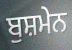
ਬੁਸ਼ਮੇਨ